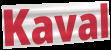
Kaval